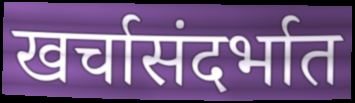
खर्चासंदर्भात